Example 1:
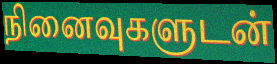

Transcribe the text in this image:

நினைவுகளுடன்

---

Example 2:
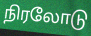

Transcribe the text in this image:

நிரலோடு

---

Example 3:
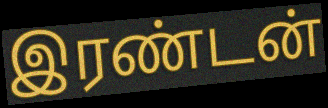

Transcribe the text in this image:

இரண்டன்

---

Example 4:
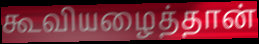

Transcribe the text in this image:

கூவியழைத்தான்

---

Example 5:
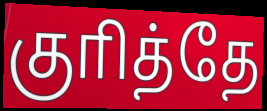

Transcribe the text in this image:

குரித்தே